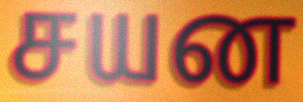
சயன